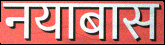
नयाबास